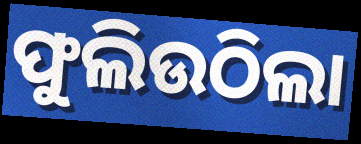
ଫୁଲିଉଠିଲା